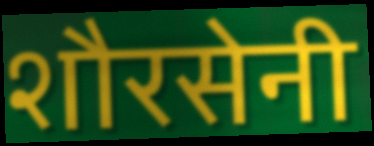
शौरसेनी